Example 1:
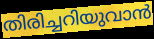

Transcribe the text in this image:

തിരിച്ചറിയുവാൻ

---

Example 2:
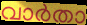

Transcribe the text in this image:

വാർതാ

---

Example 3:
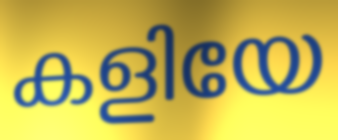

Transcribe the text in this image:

കളിയേ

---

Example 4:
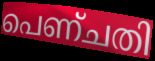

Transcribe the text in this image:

പെണ്ചതി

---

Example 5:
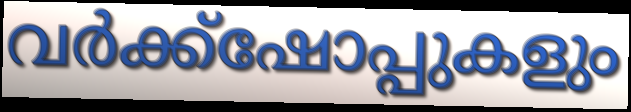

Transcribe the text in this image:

വർക്ക്ഷോപ്പുകളും